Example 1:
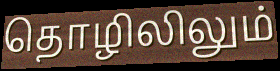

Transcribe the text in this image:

தொழிலிலும்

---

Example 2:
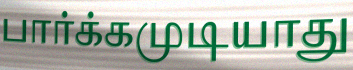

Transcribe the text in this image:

பார்க்கமுடியாது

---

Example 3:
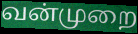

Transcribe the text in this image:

வன்முறை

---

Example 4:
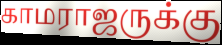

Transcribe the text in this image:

காமராஜருக்கு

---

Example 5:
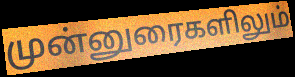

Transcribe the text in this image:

முன்னுரைகளிலும்